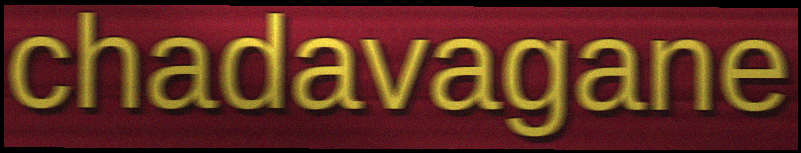
chadavagane